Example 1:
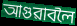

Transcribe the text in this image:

আগুৱাবলৈ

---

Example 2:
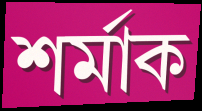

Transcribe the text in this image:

শৰ্মাক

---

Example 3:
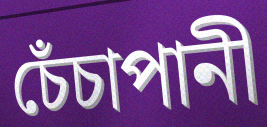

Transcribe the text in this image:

চেঁচাপানী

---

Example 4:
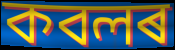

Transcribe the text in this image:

কবলৰ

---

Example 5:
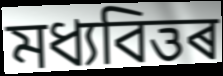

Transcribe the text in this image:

মধ্যবিত্তৰ